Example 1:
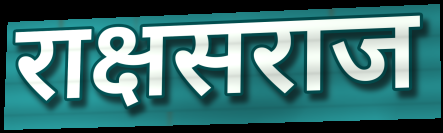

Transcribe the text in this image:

राक्षसराज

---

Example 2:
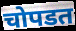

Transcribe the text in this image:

चोपडत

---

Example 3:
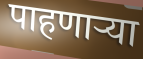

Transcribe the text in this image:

पाहणाऱ्या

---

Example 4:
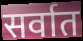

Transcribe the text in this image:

सर्वात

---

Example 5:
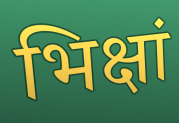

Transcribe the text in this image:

भिक्षां